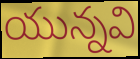
యున్నవి